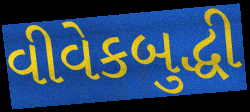
વીવેકબુદ્ધી